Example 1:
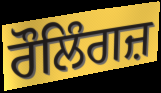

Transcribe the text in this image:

ਰੌਲਿੰਗਜ਼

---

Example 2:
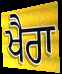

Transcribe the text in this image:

ਖੈਰਾ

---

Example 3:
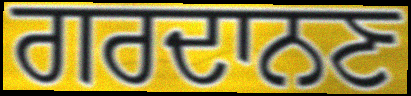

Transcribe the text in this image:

ਗਰਦਾਨਣ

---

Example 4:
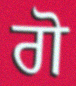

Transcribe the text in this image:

ਗੋ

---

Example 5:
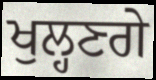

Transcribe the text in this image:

ਖੁਲ੍ਹਣਗੇ